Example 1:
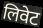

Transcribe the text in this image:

लिवेट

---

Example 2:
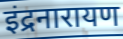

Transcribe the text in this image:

इंद्रनारायण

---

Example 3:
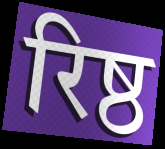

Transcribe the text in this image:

रिष्ठ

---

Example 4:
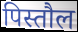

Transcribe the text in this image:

पिस्तौल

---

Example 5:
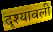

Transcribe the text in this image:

दृश्यावली